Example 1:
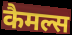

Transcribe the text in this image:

कैमल्स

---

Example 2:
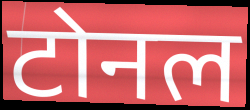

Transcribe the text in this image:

टोनल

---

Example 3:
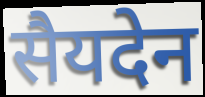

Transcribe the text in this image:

सैयदेन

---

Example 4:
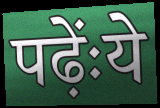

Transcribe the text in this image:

पढ़ेंःये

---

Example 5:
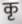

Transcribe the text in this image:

कृ